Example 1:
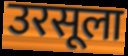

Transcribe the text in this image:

उरसूला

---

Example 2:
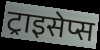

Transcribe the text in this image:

ट्राइसेप्स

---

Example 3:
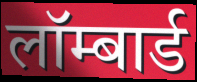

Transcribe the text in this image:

लॉम्बार्ड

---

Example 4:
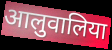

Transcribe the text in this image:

आलुवालिया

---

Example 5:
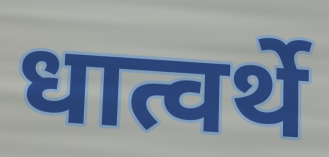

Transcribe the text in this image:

धात्वर्थे